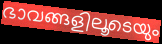
ഭാവങ്ങളിലൂടെയും